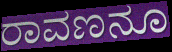
ರಾವಣನೂ